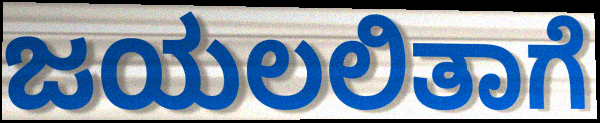
ಜಯಲಲಿತಾಗೆ